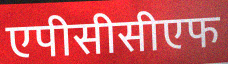
एपीसीसीएफ